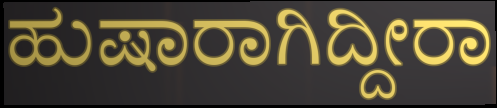
ಹುಷಾರಾಗಿದ್ದೀರಾ